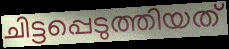
ചിട്ടപ്പെടുത്തിയത്